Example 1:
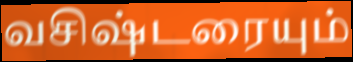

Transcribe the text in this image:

வசிஷ்டரையும்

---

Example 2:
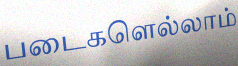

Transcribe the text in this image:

படைகளெல்லாம்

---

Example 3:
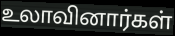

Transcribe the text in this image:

உலாவினார்கள்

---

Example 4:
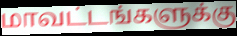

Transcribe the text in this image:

மாவட்டங்களுக்கு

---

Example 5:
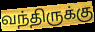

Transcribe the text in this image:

வந்திருக்கு